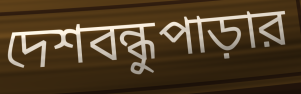
দেশবন্ধুপাড়ার